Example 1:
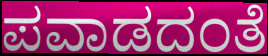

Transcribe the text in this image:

ಪವಾಡದಂತೆ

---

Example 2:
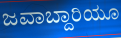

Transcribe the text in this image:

ಜವಾಬ್ದಾರಿಯೂ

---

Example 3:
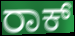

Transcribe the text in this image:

ರಾಕ್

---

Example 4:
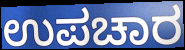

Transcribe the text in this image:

ಉಪಚಾರ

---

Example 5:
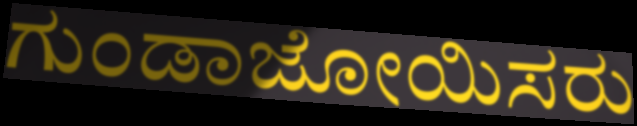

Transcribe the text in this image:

ಗುಂಡಾಜೋಯಿಸರು